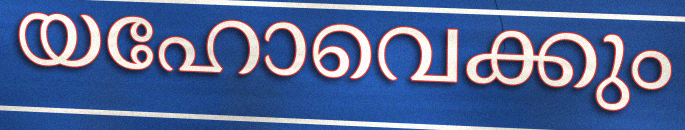
യഹോവെക്കും